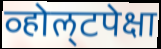
व्होल्टपेक्षा